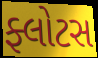
ફ્લોટસ